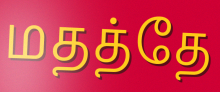
மதத்தே